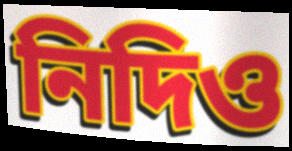
নিদিও